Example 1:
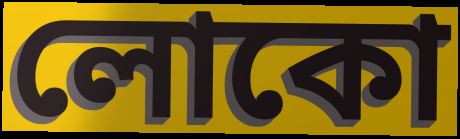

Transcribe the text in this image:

লোকো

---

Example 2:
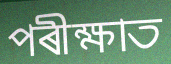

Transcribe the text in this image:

পৰীক্ষাত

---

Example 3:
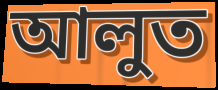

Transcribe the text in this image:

আলুত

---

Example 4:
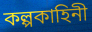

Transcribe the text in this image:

কল্পকাহিনী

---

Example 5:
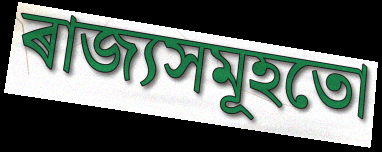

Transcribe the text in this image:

ৰাজ্যসমূহতো